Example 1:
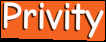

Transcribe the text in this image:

Privity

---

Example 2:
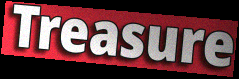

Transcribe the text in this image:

Treasure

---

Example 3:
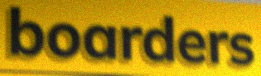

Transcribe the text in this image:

boarders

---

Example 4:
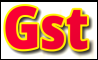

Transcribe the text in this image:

Gst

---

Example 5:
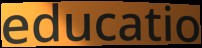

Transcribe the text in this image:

educatio